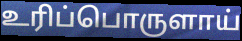
உரிப்பொருளாய்